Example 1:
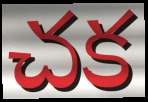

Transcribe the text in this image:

చక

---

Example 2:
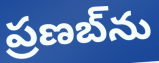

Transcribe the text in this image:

ప్రణబ్‌ను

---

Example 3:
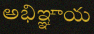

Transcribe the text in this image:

అభిఞ్ఞాయ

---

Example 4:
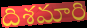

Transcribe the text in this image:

దిశమారి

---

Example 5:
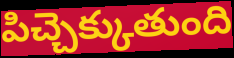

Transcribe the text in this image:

పిచ్చెక్కుతుంది